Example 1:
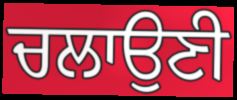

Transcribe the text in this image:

ਚਲਾਉਣੀ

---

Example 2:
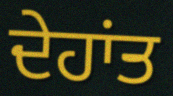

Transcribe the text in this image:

ਦੇਹਾਂਤ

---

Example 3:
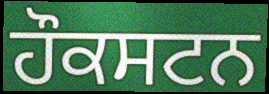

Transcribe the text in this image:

ਹੌਕਸਟਨ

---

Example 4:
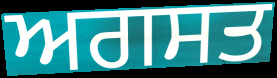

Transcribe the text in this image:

ਅਗਸਤ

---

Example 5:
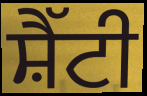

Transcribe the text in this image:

ਸ਼ੈੱਟੀ